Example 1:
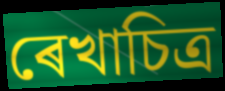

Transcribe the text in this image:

ৰেখাচিত্ৰ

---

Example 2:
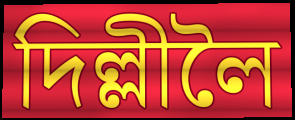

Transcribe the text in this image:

দিল্লীলৈ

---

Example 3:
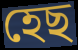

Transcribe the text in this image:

হেছ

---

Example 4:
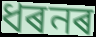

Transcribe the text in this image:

ধৰনৰ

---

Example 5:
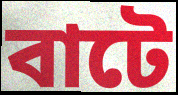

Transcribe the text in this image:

বাটে